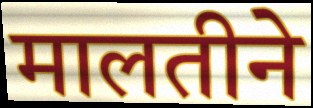
मालतीने